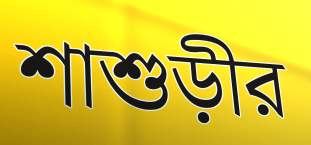
শাশুড়ীর